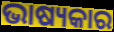
ଭାଷ୍ୟକାର